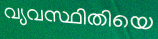
വ്യവസ്ഥിതിയെ